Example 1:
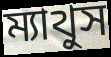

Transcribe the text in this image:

ম্যাথুস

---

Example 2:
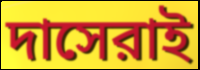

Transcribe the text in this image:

দাসেরাই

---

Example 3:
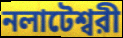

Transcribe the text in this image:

নলাটেশ্বরী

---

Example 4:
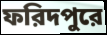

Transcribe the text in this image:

ফরিদপুরে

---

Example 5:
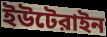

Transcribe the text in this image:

ইউটেরাইন